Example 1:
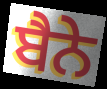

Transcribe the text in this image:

ਬੈਨੇ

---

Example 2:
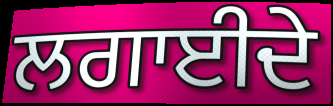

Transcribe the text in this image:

ਲਗਾਈਦੇ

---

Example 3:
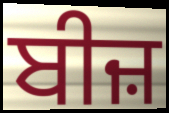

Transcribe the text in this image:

ਬੀਜ਼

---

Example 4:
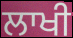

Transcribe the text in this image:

ਲਾਖੀ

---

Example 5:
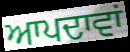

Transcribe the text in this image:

ਆਪਦਾਵਾਂ